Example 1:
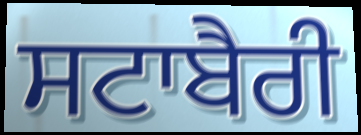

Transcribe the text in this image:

ਸਟਾਬੈਰੀ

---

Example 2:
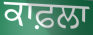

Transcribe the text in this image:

ਕਾਫ਼ਲਾ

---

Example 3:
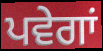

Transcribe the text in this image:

ਪਵੇਗਾਂ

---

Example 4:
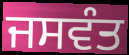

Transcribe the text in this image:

ਜਸਵੰਤ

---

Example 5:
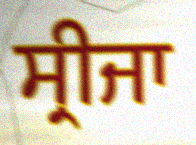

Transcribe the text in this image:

ਸ੍ਰੀਜਾ